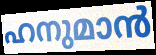
ഹനുമാൻ